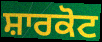
ਸ਼ਾਰਕੋਟ